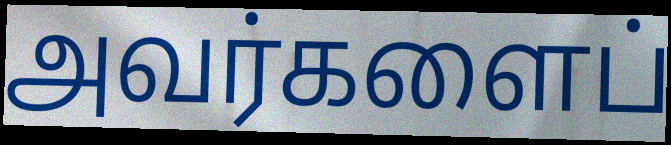
அவர்களைப்